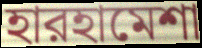
হারহামেশা